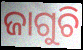
ଜାଗୁଚି